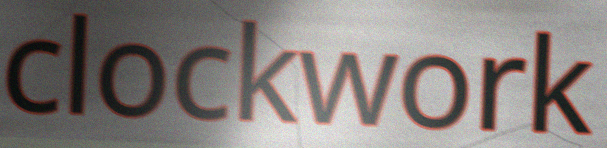
clockwork